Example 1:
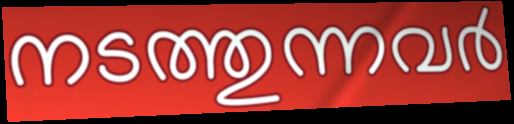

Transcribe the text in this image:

നടത്തുന്നവർ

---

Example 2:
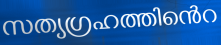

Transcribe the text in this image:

സത്യഗ്രഹത്തിൻെറ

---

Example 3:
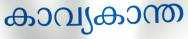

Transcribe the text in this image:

കാവ്യകാന്ത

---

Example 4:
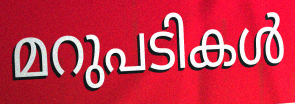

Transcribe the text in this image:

മറുപടികൾ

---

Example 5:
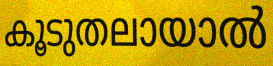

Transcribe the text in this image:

കൂടുതലായാൽ